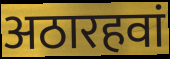
अठारहवां